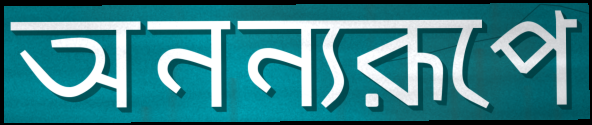
অনন্যরূপে